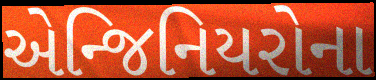
એન્જિનિયરોના